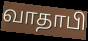
வாதாபி